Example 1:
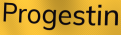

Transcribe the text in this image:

Progestin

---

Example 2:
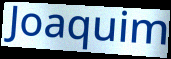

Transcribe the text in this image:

Joaquim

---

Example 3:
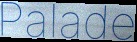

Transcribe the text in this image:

Palade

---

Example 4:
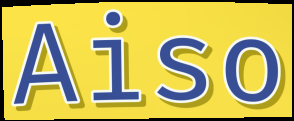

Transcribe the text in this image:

Aiso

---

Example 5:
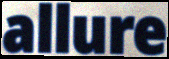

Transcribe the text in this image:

allure